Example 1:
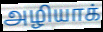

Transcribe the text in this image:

அழியாக்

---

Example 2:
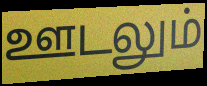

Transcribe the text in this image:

ஊடலும்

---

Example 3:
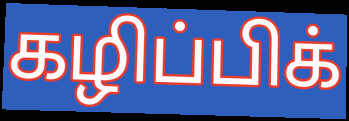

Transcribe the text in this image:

கழிப்பிக்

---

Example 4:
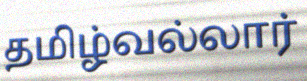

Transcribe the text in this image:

தமிழ்வல்லார்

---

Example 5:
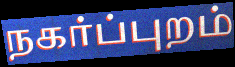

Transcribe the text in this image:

நகர்ப்புறம்